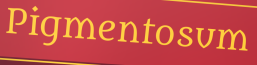
Pigmentosum